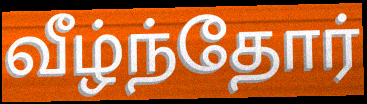
வீழ்ந்தோர்